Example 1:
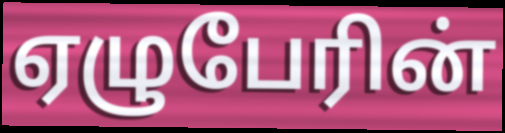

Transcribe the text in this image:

ஏழுபேரின்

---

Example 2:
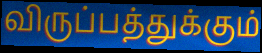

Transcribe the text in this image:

விருப்பத்துக்கும்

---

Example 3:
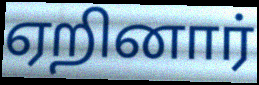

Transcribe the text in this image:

ஏறினார்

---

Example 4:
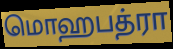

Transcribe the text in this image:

மொஹபத்ரா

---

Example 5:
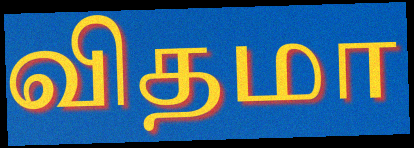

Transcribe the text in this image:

விதமா